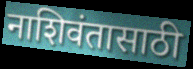
नाशिवंतासाठी